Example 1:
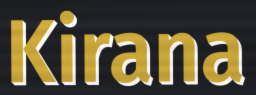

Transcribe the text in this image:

Kirana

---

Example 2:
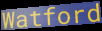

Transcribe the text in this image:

Watford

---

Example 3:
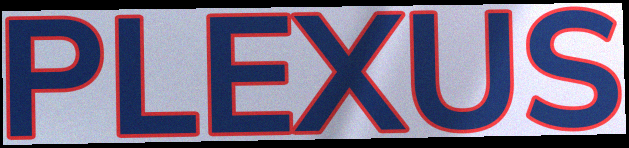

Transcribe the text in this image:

PLEXUS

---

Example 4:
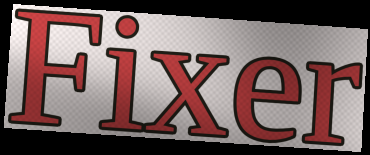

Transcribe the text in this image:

Fixer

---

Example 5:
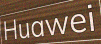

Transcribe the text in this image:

Huawei